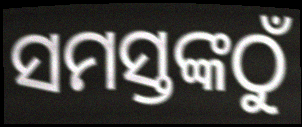
ସମସ୍ତଙ୍କଠୁଁ